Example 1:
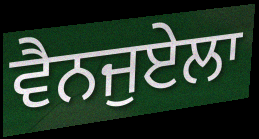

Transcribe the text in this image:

ਵੈਨਜੁਏਲਾ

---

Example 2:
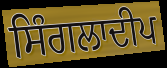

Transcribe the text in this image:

ਸਿੰਗਲਾਦੀਪ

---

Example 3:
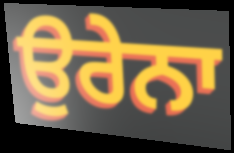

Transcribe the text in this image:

ਉਰੇਨਾ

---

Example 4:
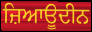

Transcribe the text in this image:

ਜ਼ਿਆਊਦੀਨ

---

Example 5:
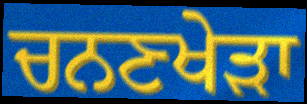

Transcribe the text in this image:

ਚਨਣਖੇੜਾ